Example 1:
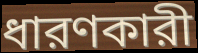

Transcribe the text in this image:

ধারণকারী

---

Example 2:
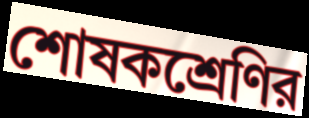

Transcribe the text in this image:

শোষকশ্রেণির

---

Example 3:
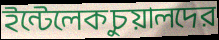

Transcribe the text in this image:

ইন্টেলেকচুয়ালদের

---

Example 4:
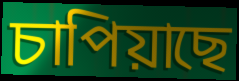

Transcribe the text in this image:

চাপিয়াছে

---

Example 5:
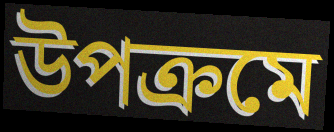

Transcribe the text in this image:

উপক্রমে